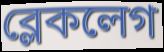
ব্লেকলেগ